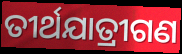
ତୀର୍ଥଯାତ୍ରୀଗଣ